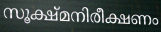
സൂക്ഷ്മനിരീക്ഷണം